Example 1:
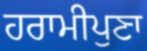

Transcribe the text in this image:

ਹਰਾਮੀਪੁਣਾ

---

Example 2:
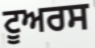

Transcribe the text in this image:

ਟੂਅਰਸ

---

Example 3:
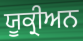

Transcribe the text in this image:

ਯੂਕ੍ਰੀਅਨ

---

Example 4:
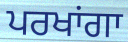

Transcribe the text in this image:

ਪਰਖਾਂਗਾ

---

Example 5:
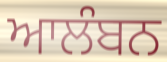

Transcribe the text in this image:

ਆਲੰਬਨ